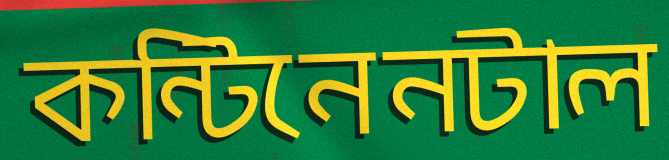
কন্টিনেনটাল